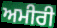
ਅਮੀਰੀ